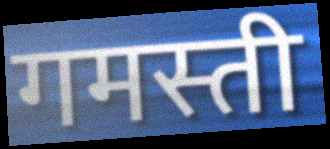
गमस्ती